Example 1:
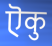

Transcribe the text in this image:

ऎकु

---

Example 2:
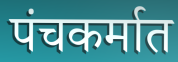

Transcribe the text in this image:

पंचकर्मात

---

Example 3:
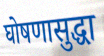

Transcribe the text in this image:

घोषणासुद्धा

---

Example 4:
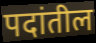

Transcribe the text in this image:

पदांतील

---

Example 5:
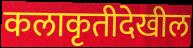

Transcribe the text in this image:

कलाकृतीदेखील